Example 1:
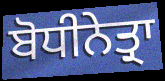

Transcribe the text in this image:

ਬੋਧੀਨੇਤ੍ਰਾ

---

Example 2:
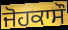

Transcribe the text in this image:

ਜੋਹਕਾਸੌ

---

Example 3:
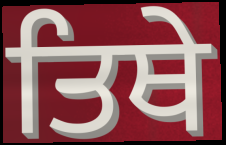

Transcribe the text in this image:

ਤਿਥੇ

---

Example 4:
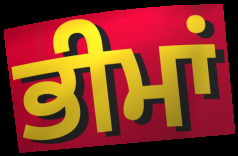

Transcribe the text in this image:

ਭੀਮਾਂ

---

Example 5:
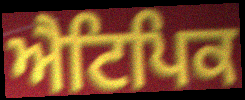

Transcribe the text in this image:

ਐਟਿਪਿਕ